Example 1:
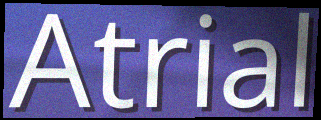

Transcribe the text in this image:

Atrial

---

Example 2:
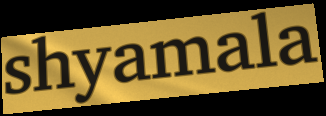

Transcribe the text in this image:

shyamala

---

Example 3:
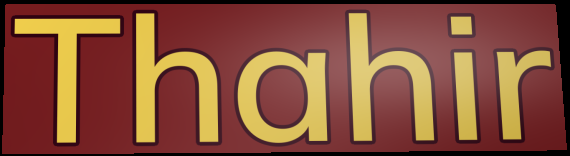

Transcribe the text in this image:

Thahir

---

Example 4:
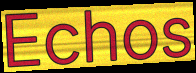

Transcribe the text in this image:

Echos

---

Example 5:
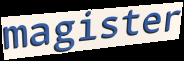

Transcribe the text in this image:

magister